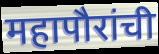
महापौरांची